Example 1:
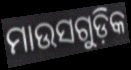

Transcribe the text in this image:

ମାଉସଗୁଡ଼ିକ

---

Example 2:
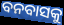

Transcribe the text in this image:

ବନବାସକୁ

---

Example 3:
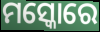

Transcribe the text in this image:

ମସ୍କୋରେ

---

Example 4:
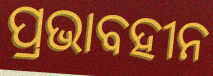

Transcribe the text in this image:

ପ୍ରଭାବହୀନ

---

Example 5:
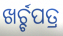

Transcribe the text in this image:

ଖର୍ଚ୍ଚପତ୍ର